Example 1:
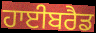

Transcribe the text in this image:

ਹਾਈਬਰੈਡ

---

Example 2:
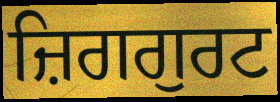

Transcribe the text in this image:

ਜ਼ਿਗਗੁਰਟ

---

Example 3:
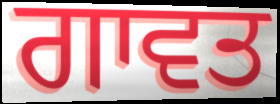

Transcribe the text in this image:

ਗਾਵਤ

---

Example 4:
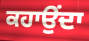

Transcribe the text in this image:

ਕਹਾਉਂਦਾ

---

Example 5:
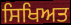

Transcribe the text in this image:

ਸਿਖਿਅਤ